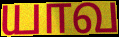
யாவ